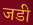
जडी